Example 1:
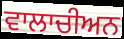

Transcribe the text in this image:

ਵਾਲਾਚੀਅਨ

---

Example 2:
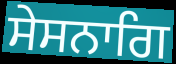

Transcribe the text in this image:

ਸੇਸਨਾਗਿ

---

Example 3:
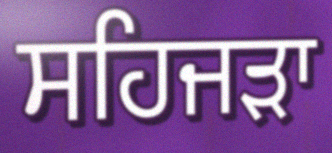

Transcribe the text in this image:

ਸਹਿਜੜਾ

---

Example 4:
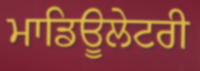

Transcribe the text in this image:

ਮਾਡਿਊਲੇਟਰੀ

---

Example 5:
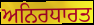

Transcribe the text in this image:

ਅਨਿਰਧਾਰਤ